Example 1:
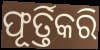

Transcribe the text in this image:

ଫୂର୍ତ୍ତିକରି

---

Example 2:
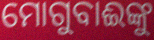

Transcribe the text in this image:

ମୋଗୁବାଈଙ୍କୁ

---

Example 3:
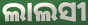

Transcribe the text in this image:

ଲାଲସୀ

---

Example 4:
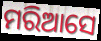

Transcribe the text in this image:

ମରିଆସେ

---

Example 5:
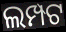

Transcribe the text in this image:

ଲମ୍ପଟ